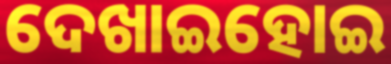
ଦେଖାଇହୋଇ